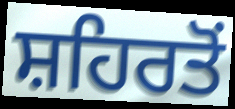
ਸ਼ਹਿਰਤੋਂ